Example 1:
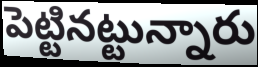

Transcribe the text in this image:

పెట్టినట్టున్నారు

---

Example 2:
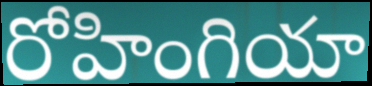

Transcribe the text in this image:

రోహింగియా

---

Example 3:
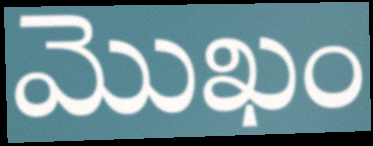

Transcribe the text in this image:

మొఖం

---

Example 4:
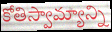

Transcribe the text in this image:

కోతిస్వామ్యాన్ని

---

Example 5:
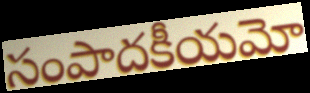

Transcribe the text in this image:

సంపాదకీయమో